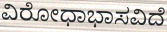
ವಿರೋಧಾಭಾಸವಿದೆ